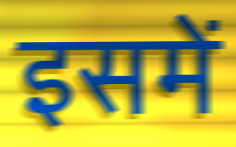
इसमें